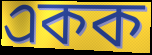
একক